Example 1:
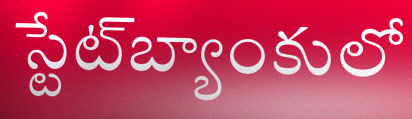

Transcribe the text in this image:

స్టేట్‌బ్యాంకులో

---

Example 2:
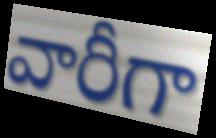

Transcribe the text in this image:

వారీగా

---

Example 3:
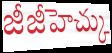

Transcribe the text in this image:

జీజీహెచ్కు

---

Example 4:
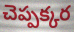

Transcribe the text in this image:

చెప్పక్కర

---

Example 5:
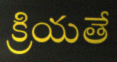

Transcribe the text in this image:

క్రియతే